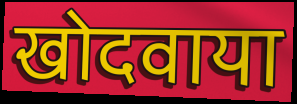
खोदवाया